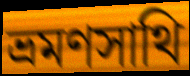
ভ্রমণসাথি